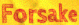
Forsake